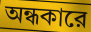
অন্ধকারে